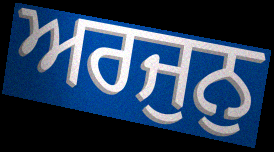
ਅਰਜੁਨੁ